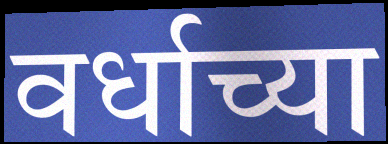
वर्धाच्या